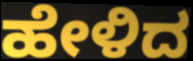
ಹೇಳಿದ